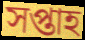
সপ্তাহ